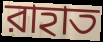
রাহাত